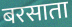
बरसाता